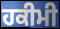
ਹਕੀਮੀ